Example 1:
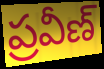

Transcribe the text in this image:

ప్రవీణ్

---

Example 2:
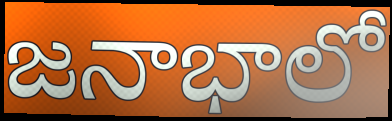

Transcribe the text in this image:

జనాభాలో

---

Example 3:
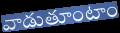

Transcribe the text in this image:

వాడుతూంటాం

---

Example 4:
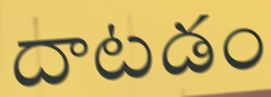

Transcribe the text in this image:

దాటడం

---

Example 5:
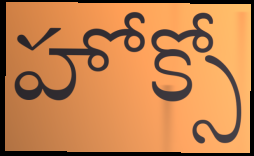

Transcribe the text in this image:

హోక్సో